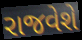
રાજવેશે